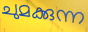
ചുമക്കുന്ന